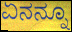
ಏನನ್ನೂ